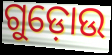
ଗୁଡ଼ୋଉ